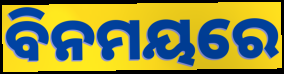
ବିନମୟରେ